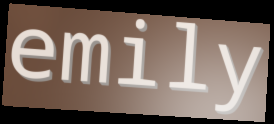
emily